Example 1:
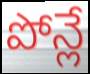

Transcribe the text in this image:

పోన్లే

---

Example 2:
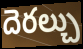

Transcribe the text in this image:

దెరల్చు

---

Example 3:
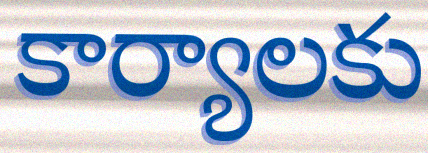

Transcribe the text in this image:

కార్యాలకు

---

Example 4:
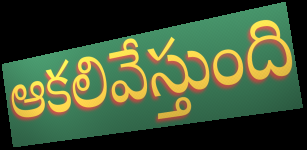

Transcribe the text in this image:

ఆకలివేస్తుంది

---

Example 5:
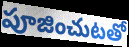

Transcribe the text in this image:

పూజించుటతో